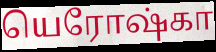
யெரோஷ்கா